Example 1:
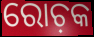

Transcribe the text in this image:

ରୋଚ଼କ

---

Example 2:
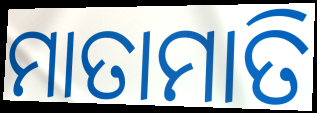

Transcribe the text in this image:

ମାତାମାତି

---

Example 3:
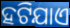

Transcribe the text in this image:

ହଟିଯାଏ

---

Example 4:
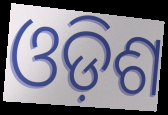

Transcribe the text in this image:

ଓଡ଼ିଶ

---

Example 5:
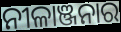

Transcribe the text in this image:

ନୀଳାଞ୍ଜନାର